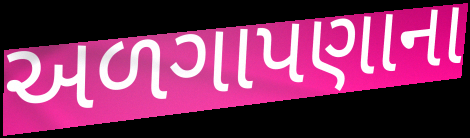
અળગાપણાના